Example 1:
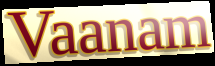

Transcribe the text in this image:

Vaanam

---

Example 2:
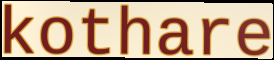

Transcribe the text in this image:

kothare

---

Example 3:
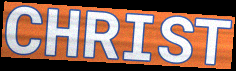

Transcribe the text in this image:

CHRIST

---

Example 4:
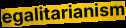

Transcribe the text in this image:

egalitarianism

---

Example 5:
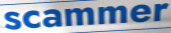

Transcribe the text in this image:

scammer